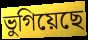
ভুগিয়েছে